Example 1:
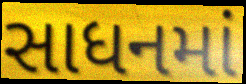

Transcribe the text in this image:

સાધનમાં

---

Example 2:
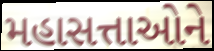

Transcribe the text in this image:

મહાસત્તાઓને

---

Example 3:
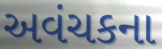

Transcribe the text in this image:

અવંચકના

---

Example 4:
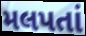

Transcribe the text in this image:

મલપતાં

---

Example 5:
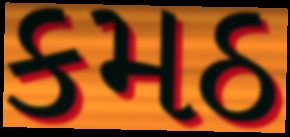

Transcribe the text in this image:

કમઠ